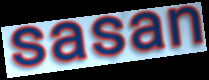
sasan